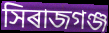
সিৰাজগঞ্জ